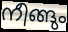
നീങ്ങും